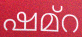
ഷമ്റ